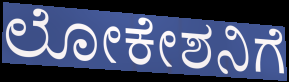
ಲೋಕೇಶನಿಗೆ